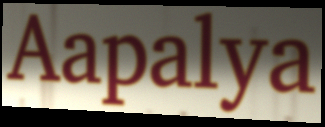
Aapalya